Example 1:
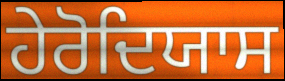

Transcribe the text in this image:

ਹੇਰੋਦਿਯਾਸ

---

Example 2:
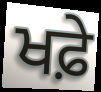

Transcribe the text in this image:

ਖਫ਼ੇ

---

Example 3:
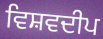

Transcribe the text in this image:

ਵਿਸ਼ਵਦੀਪ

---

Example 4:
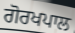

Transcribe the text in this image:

ਗੋਰਖਪਾਲ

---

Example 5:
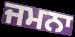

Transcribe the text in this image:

ਜਮਨਾ